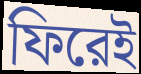
ফিরেই